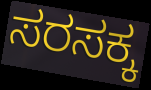
ಸರಸಕ್ಕ